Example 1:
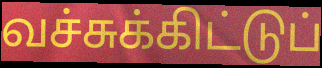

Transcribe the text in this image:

வச்சுக்கிட்டுப்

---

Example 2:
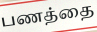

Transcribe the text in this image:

பணத்தை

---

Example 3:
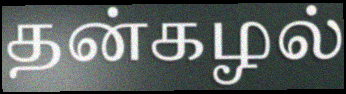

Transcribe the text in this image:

தன்கழல்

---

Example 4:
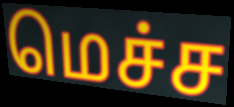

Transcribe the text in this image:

மெச்ச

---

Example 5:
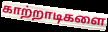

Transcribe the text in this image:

காற்றாடிகளை